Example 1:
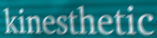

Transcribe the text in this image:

kinesthetic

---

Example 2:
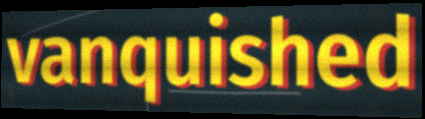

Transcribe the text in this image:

vanquished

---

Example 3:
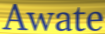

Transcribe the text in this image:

Awate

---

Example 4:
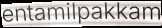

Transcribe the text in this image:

entamilpakkam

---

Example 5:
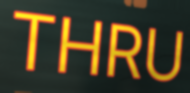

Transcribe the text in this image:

THRU